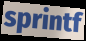
sprintf